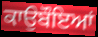
ਕਾਉਬੌਇਆਂ